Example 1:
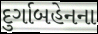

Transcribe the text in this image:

દુર્ગાબહેનના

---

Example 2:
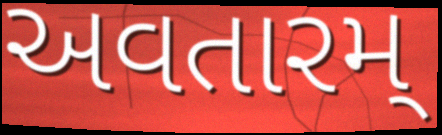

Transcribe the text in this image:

અવતારમ્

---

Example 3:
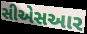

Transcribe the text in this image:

સીએસઆર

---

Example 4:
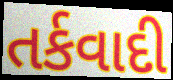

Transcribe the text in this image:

તર્કવાદી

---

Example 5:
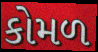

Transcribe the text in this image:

કોમળ